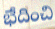
భేదించి